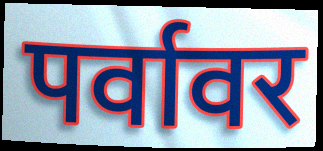
पर्वावर